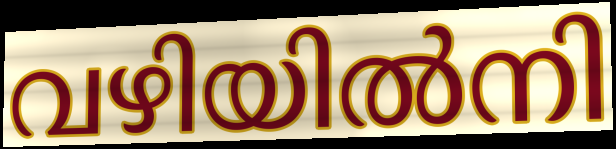
വഴിയിൽനി